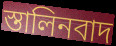
স্তালিনবাদ